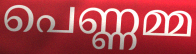
പെണ്ണമ്മ